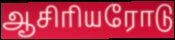
ஆசிரியரோடு